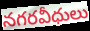
నగరవీధులు